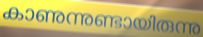
കാണുന്നുണ്ടായിരുന്നു